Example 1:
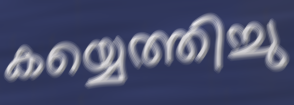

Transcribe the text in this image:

കയ്യെത്തിച്ചു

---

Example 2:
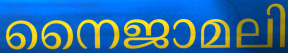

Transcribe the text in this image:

നൈജാമലി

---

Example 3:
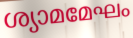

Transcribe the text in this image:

ശ്യാമമേഘം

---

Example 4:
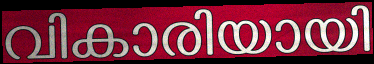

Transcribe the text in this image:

വികാരിയായി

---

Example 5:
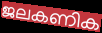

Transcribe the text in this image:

ജലകണിക